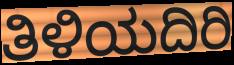
ತಿಳಿಯದಿರಿ